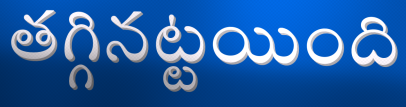
తగ్గినట్టయింది